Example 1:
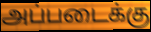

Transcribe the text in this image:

அப்படைக்கு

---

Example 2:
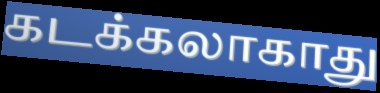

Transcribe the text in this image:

கடக்கலாகாது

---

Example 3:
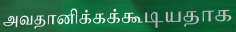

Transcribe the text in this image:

அவதானிக்கக்கூடியதாக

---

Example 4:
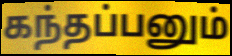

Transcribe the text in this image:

கந்தப்பனும்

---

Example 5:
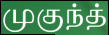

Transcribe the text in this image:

முகுந்த்